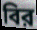
বির